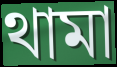
থামা